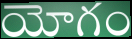
యోగం